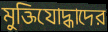
মুক্তিযোদ্ধাদের